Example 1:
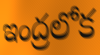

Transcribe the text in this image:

ఇంద్రలోక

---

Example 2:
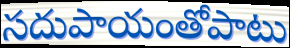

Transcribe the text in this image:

సదుపాయంతోపాటు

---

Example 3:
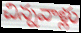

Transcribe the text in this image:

చిన్నవాళ్లు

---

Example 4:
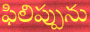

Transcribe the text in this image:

ఫిలిప్పును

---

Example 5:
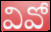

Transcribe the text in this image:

వివో